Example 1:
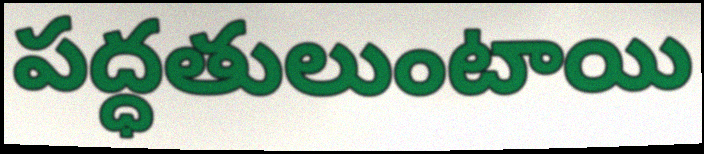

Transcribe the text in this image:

పద్ధతులుంటాయి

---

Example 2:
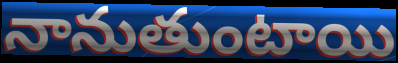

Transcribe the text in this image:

నానుతుంటాయి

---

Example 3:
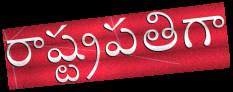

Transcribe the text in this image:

రాష్ట్రపతిగా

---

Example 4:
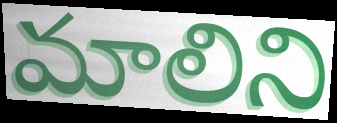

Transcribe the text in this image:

మాలిని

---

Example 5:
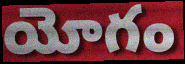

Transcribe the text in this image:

యోగం